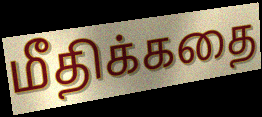
மீதிக்கதை